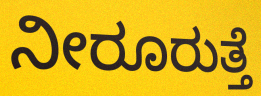
ನೀರೂರುತ್ತೆ